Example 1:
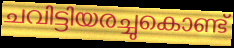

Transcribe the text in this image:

ചവിട്ടിയരച്ചുകൊണ്ട്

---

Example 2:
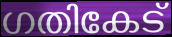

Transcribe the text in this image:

ഗതികേട്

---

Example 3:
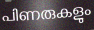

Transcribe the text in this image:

പിണരുകളും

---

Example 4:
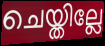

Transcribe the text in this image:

ചെയ്തില്ലേ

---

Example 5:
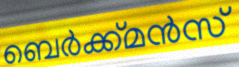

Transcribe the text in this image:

ബെർക്ക്മൻസ്